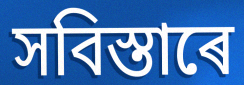
সবিস্তাৰে